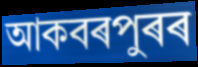
আকবৰপুৰৰ